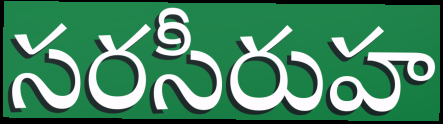
సరసీరుహ